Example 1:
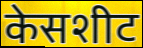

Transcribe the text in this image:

केसशीट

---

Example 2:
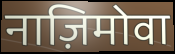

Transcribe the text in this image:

नाज़िमोवा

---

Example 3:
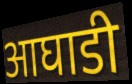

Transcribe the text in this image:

आघाडी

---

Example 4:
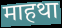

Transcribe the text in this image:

माहथा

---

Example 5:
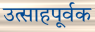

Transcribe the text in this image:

उत्‍साहपूर्वक